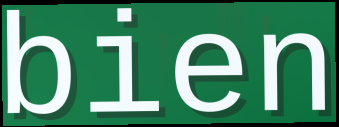
bien